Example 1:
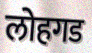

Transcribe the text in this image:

लोहगड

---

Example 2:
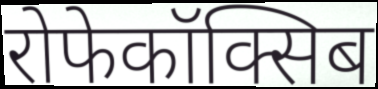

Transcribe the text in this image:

रोफेकॉक्सिब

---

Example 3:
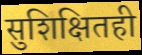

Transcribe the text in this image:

सुशिक्षितही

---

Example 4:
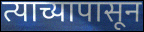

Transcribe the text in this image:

त्याच्यापासून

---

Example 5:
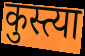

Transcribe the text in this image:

कुस्त्या